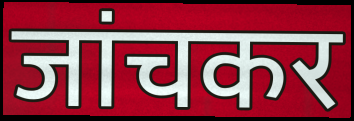
जांचकर